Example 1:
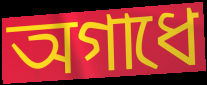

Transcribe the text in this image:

অগাধে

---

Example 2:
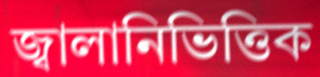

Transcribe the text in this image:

জ্বালানিভিত্তিক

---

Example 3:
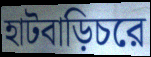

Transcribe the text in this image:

হাটবাড়িচরে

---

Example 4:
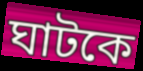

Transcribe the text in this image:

ঘাটকে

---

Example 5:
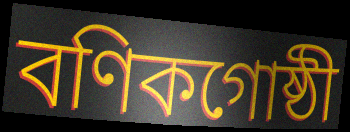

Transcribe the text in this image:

বণিকগোষ্ঠী